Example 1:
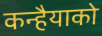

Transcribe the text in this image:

कन्हैयाको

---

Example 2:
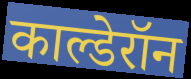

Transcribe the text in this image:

काल्डेरॉन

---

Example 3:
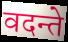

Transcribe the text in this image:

वदन्ते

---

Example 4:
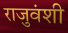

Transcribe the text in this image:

राजुवंशी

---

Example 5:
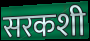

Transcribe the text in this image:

सरकशी